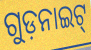
ଗୁଡ଼ନାଇଟ୍